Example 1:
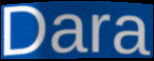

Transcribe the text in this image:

Dara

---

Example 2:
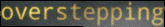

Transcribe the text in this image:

overstepping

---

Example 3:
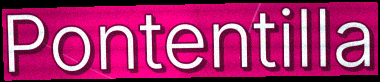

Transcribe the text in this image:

Pontentilla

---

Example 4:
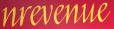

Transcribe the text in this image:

nrevenue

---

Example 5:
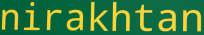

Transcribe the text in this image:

nirakhtan